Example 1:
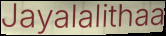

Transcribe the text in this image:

Jayalalithaa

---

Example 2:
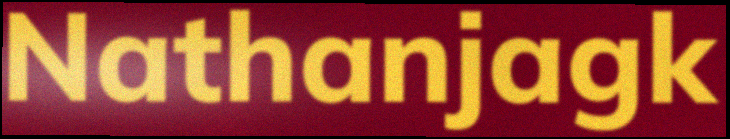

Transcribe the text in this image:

Nathanjagk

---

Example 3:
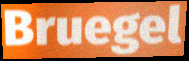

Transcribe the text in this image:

Bruegel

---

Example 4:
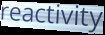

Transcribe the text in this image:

reactivity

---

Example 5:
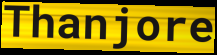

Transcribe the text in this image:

Thanjore